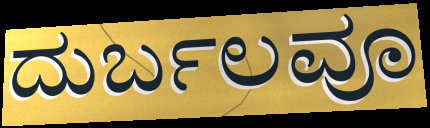
ದುರ್ಬಲವೂ